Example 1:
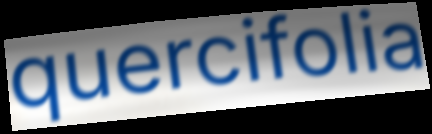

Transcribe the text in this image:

quercifolia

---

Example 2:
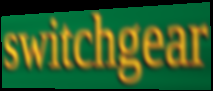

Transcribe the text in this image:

switchgear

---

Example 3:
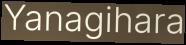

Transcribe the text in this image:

Yanagihara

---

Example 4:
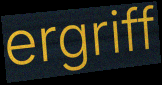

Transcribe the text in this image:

ergriff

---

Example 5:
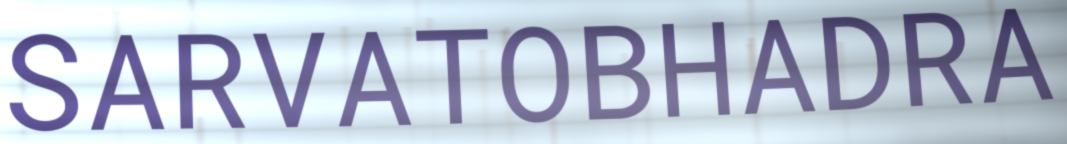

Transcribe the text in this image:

SARVATOBHADRA